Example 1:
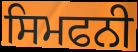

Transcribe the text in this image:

ਸਿਮਫਨੀ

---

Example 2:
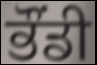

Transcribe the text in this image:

ਭੌਂਡੀ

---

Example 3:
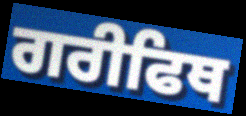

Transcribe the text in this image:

ਗਰੀਫਿਥ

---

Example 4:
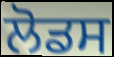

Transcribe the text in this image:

ਲੋਡਸ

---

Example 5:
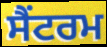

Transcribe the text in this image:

ਸੈਂਟਰਮ